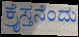
ಕ್ರೈಸ್ತನೆಂದು